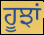
ਹੂਝਾਂ